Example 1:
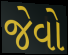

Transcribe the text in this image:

જેવો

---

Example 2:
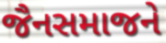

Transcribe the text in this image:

જૈનસમાજને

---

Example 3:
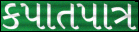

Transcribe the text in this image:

કપાતપાત્ર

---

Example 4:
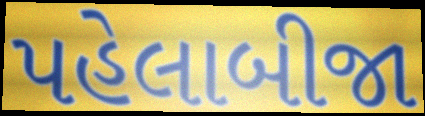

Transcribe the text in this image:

પહેલાબીજા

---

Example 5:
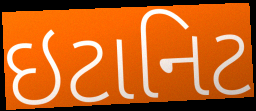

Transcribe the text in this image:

ઇટાનિટ